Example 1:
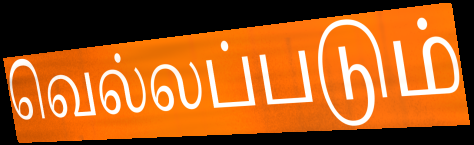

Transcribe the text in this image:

வெல்லப்படும்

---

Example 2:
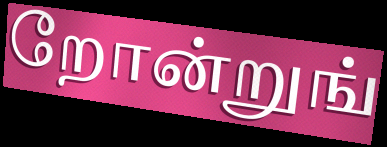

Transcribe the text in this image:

றோன்றுங்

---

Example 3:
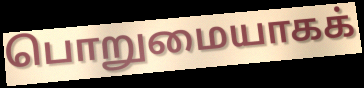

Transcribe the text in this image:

பொறுமையாகக்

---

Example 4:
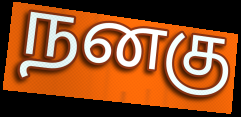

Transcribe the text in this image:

நனகு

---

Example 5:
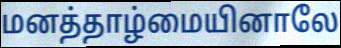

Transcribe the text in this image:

மனத்தாழ்மையினாலே